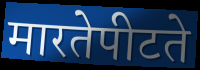
मारतेपीटते